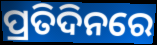
ପ୍ରତିଦିନରେ